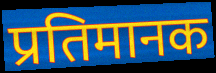
प्रतिमानक